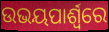
ଉଭୟପାର୍ଶ୍ବରେ